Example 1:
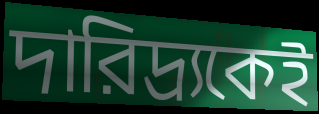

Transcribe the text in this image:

দারিদ্র্যকেই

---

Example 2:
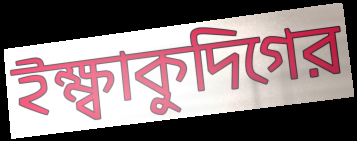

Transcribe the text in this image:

ইক্ষ্বাকুদিগের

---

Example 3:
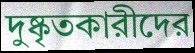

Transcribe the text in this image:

দুষ্কৃতকারীদের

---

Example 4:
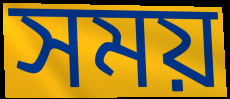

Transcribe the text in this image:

সময়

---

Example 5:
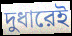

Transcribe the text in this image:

দুধারেই